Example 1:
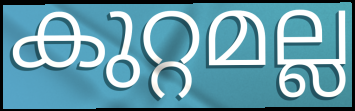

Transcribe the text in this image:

കുറ്റമല്ല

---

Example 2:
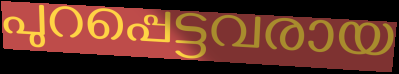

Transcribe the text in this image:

പുറപ്പെട്ടവരായ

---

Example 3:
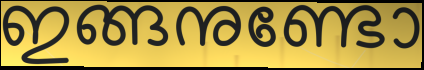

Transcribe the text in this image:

ഇങ്ങനുണ്ടോ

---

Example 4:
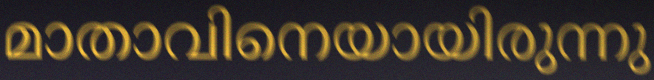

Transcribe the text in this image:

മാതാവിനെയായിരുന്നു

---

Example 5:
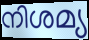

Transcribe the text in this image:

നിശമ്യ